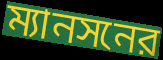
ম্যানসনের